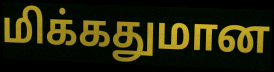
மிக்கதுமான